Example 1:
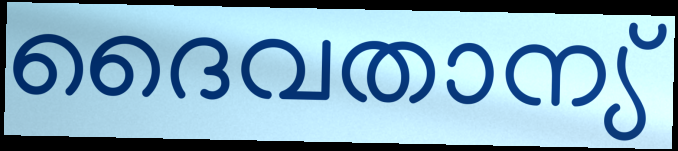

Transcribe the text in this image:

ദൈവതാന്യ്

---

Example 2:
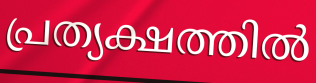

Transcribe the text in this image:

പ്രത്യക്ഷത്തിൽ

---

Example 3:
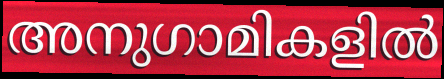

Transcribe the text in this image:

അനുഗാമികളിൽ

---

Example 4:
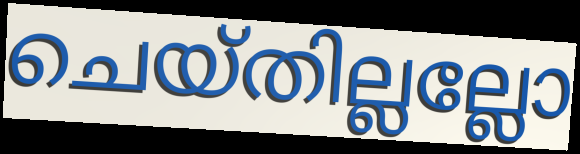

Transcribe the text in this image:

ചെയ്തില്ലല്ലോ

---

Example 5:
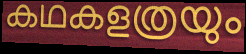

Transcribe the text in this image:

കഥകളത്രയും